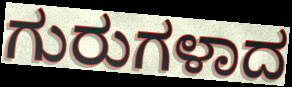
ಗುರುಗಳಾದ